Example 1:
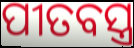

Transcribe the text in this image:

ପୀତବସ୍ତ୍ର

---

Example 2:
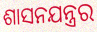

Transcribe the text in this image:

ଶାସନଯନ୍ତ୍ରର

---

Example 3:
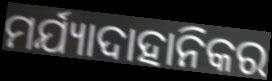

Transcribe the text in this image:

ମର୍ଯ୍ୟାଦାହାନିକର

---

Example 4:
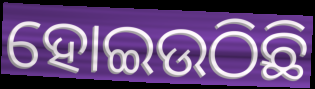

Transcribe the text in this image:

ହୋଇଉଠିଛି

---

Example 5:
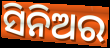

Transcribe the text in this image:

ସିନିଅର